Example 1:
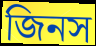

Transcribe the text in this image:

জিনস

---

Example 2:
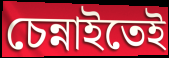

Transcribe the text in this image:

চেন্নাইতেই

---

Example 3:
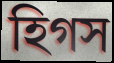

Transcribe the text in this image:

হিগস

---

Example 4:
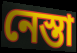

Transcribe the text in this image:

নেস্তা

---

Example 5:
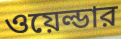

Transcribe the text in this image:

ওয়েল্ডার